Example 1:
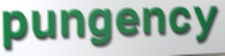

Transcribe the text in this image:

pungency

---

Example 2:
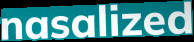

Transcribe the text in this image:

nasalized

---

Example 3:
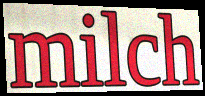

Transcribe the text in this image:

milch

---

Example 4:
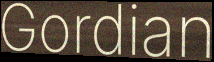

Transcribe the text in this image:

Gordian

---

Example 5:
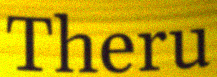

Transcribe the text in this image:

Theru